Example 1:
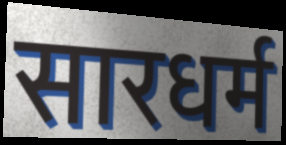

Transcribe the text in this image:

सारधर्म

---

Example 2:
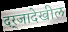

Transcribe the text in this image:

दर्जादेखील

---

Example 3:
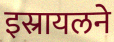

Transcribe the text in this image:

इस्रायलने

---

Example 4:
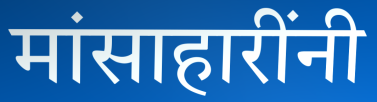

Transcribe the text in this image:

मांसाहारींनी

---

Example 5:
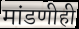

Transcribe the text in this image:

मांडणीही